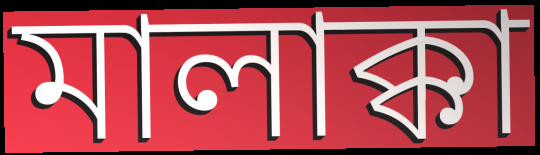
মালাক্কা